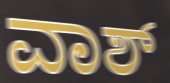
ವಾಶ್